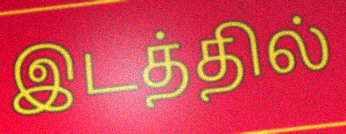
இடத்தில்